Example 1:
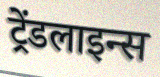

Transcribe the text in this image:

ट्रेंडलाइन्स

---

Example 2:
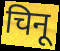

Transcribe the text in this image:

चिनू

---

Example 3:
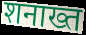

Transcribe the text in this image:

शनाख्त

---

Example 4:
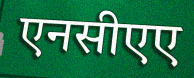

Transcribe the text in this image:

एनसीएए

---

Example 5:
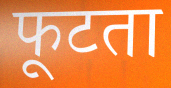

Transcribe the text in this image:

फूटता